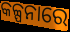
କଳ୍ପନାରେ